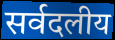
सर्वदलीय